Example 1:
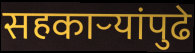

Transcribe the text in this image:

सहकाऱ्यांपुढे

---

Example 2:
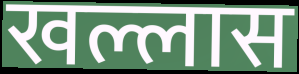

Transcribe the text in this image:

खल्लास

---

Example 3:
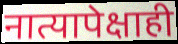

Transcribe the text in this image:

नात्यापेक्षाही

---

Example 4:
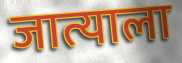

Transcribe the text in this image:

जात्याला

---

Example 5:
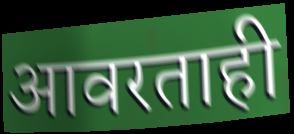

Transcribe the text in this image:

आवरताही